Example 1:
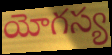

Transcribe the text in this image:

యోగస్య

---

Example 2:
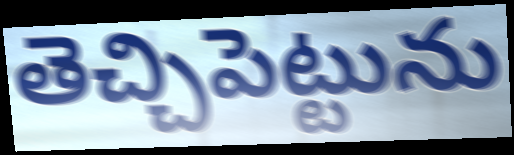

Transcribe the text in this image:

తెచ్చిపెట్టును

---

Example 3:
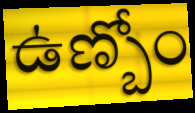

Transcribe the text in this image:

ఉణ్బోం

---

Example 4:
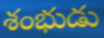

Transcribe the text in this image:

శంభుడు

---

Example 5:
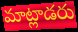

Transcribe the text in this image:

మాట్లాడరు